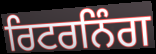
ਰਿਟਰਨਿੰਗ